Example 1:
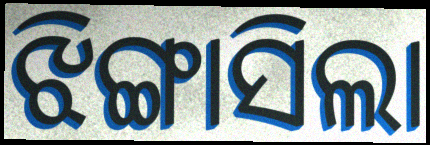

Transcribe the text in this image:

ଝିଙ୍ଗାସିଲା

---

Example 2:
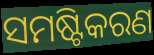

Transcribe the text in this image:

ସମଷ୍ଟିକରଣ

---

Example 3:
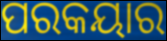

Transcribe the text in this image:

ପରକୟାର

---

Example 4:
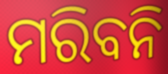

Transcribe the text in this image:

ମରିବନି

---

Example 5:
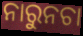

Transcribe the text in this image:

ନାରୁନଚା